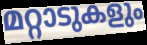
മറ്റാടുകളും